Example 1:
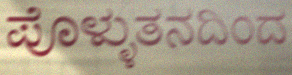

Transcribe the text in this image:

ಪೊಳ್ಳುತನದಿಂದ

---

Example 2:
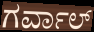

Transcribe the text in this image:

ಗರ್ವಾಲ್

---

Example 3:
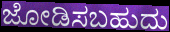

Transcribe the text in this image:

ಜೋಡಿಸಬಹುದು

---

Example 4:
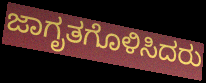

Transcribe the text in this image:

ಜಾಗೃತಗೊಳಿಸಿದರು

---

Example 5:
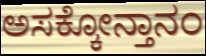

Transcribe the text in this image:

ಅಸಕ್ಕೋನ್ತಾನಂ